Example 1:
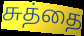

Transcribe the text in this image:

சுத்தை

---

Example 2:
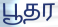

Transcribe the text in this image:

பூதர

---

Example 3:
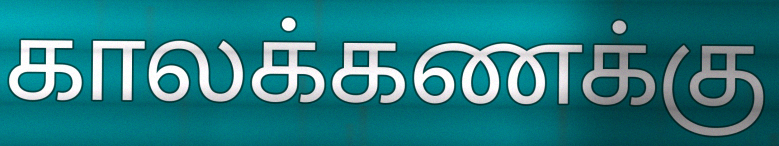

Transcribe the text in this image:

காலக்கணக்கு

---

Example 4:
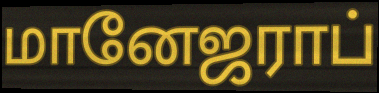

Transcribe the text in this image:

மானேஜராப்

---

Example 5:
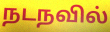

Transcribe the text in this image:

நடநவில்